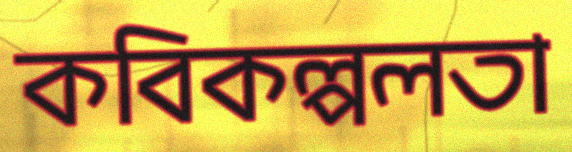
কবিকল্পলতা